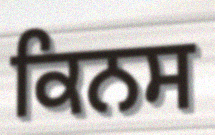
ਕਿਨਸ